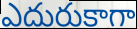
ఎదురుకాగా